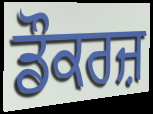
ਡੌਕਰਜ਼